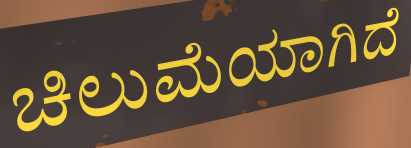
ಚಿಲುಮೆಯಾಗಿದೆ